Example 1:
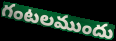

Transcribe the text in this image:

గంటలముందు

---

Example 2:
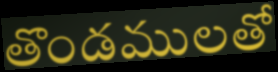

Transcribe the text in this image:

తొండములతో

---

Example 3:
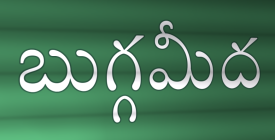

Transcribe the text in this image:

బుగ్గమీద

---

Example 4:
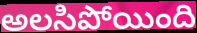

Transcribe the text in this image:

అలసిపోయింది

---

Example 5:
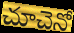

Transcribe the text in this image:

చూచెనో